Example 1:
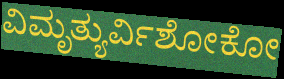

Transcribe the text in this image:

ವಿಮೃತ್ಯುರ್ವಿಶೋಕೋ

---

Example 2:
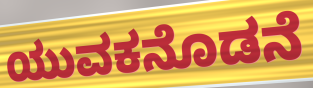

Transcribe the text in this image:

ಯುವಕನೊಡನೆ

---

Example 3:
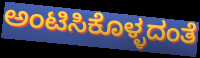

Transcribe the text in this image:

ಅಂಟಿಸಿಕೊಳ್ಳದಂತೆ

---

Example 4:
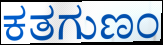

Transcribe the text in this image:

ಕತಗುಣಂ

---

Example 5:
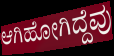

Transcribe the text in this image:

ಆಗಿಹೋಗಿದ್ದೆವು